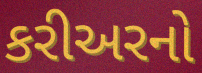
કરીઅરનો